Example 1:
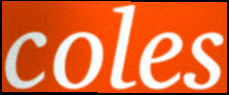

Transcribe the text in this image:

coles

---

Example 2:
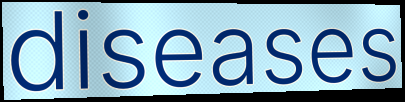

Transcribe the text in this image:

diseases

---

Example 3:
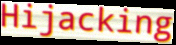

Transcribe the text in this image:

Hijacking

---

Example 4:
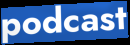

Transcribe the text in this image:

podcast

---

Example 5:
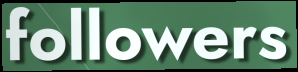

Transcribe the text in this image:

followers